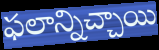
ఫలాన్నిచ్చాయి